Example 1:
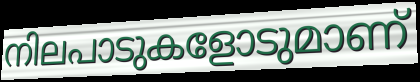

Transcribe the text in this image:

നിലപാടുകളോടുമാണ്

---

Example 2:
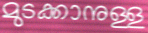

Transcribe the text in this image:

മുടക്കാനുള്ള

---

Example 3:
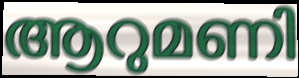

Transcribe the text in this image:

ആറുമണി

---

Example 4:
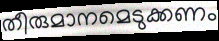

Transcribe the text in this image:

തീരുമാനമെടുക്കണം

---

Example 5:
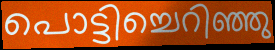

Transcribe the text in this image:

പൊട്ടിച്ചെറിഞ്ഞു